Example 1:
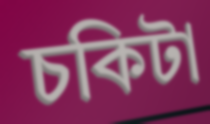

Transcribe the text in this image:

চকিটা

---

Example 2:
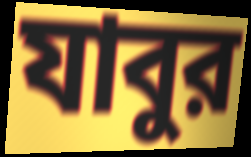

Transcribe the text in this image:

যাবুর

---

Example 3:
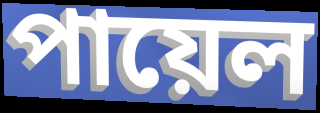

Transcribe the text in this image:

পায়েল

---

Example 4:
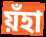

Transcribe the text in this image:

য়ঁহা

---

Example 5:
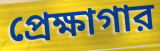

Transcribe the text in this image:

প্রেক্ষাগার